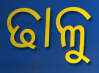
ଢାଳୁ